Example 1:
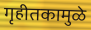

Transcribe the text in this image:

गृहीतकामुळे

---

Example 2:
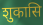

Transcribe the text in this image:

शुकासि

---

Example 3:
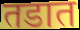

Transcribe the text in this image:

तडात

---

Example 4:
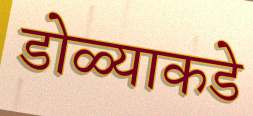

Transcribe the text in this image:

डोळ्याकडे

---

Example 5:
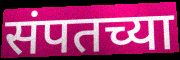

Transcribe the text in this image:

संपतच्या